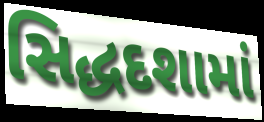
સિદ્ધદશામાં